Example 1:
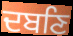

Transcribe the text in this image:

ਦਬਣਿ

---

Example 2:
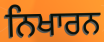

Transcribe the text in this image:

ਨਿਖਾਰਨ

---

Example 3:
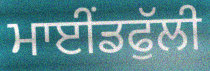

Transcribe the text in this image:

ਮਾਈਂਡਫੁੱਲੀ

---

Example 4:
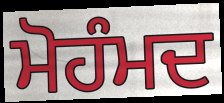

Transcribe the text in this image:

ਮੋਹੰਮਦ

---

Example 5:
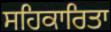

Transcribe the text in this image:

ਸਹਿਕਾਰਿਤਾ